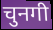
चुनगी